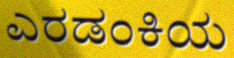
ಎರಡಂಕಿಯ